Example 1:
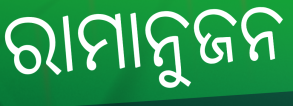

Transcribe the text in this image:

ରାମାନୁଜନ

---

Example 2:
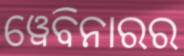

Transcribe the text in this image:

ୱେବିନାରର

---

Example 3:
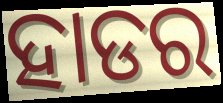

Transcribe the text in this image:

ହାଡର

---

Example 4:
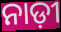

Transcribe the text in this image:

ନାଡ଼ୀ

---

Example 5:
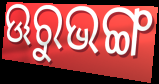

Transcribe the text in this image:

ଊରୁଭଙ୍ଗ